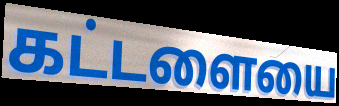
கட்டளையை